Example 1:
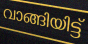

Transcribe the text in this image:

വാങ്ങിയിട്ട്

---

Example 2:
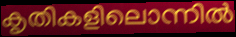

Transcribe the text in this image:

കൃതികളിലൊന്നിൽ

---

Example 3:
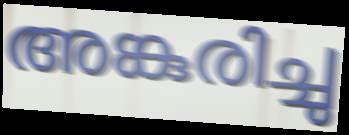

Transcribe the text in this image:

അങ്കുരിച്ചു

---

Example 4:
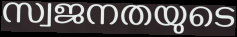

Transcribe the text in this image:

സ്വജനതയുടെ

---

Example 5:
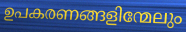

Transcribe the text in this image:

ഉപകരണങ്ങളിന്മേലും